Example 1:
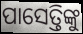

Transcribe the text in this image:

ପାସେତ୍ତିଙ୍କୁ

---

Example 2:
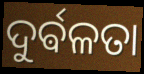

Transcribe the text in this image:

ଦୁର୍ଵଳତା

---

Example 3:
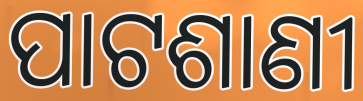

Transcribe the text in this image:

ପାଟଶାଣୀ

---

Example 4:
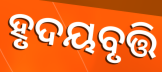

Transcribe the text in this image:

ହୃଦୟବୃତ୍ତି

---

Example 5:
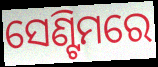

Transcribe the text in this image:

ସେଣ୍ଟିମରେ